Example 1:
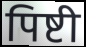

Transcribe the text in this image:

पिष्टी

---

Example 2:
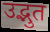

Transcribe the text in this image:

उद्भुत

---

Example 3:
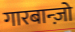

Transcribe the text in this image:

गारबान्ज़ो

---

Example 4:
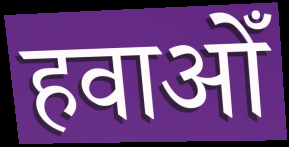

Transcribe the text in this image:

हवाओँ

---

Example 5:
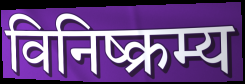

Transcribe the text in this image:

विनिष्क्रम्य